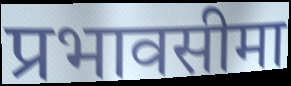
प्रभावसीमा